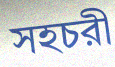
সহচরী